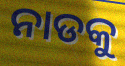
ନାଡକୁ